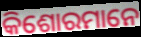
କିଶୋରମାନେ